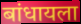
बांधायला